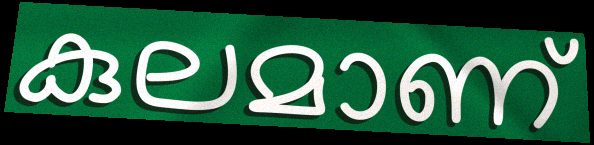
കുലമാണ്